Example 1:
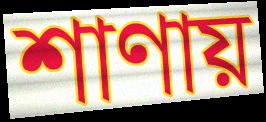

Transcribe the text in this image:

শাণায়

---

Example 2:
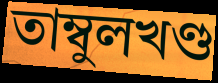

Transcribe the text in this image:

তাম্বুলখণ্ড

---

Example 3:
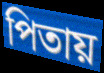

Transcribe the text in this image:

পিতায়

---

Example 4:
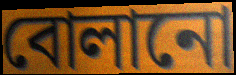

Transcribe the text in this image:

বোলানো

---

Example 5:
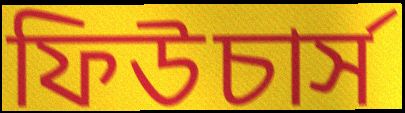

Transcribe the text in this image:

ফিউচার্স